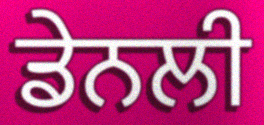
ਡੇਨਲੀ